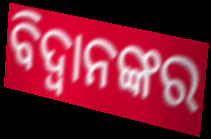
ବିଦ୍ୱାନଙ୍କର